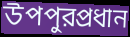
উপপুরপ্রধান